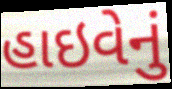
હાઇવેનું